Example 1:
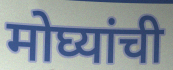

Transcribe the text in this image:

मोघ्यांची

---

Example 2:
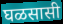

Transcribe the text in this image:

घळसासी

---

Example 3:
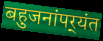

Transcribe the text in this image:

बहुजनांपर्यंत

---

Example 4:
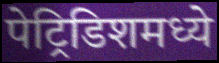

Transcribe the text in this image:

पेट्रिडिशमध्ये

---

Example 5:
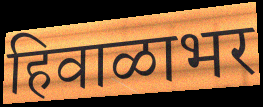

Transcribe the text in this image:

हिवाळाभर